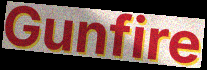
Gunfire